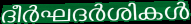
ദീർഘദർശികൾ